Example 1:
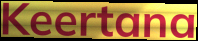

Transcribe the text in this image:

Keertana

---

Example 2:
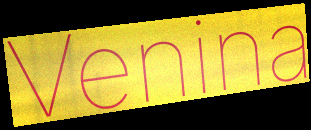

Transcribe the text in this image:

Venina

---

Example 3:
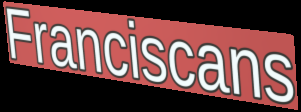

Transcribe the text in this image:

Franciscans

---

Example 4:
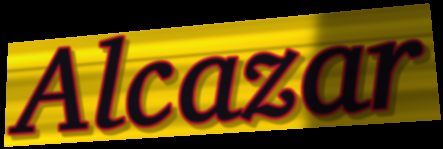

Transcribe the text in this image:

Alcazar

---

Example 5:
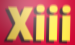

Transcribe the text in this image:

Xiii